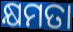
କ୍ଷମତା